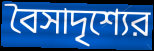
বৈসাদৃশ্যের